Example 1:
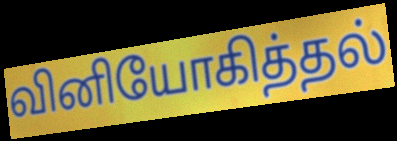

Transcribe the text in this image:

வினியோகித்தல்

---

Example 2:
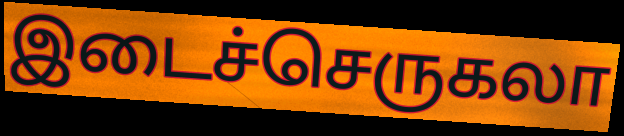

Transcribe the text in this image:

இடைச்செருகலா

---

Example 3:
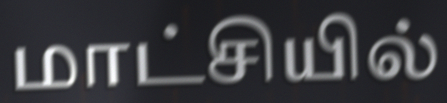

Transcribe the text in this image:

மாட்சியில்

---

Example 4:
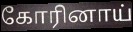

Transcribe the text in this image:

கோரினாய்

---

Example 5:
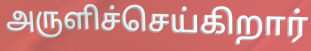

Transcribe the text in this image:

அருளிச்செய்கிறார்